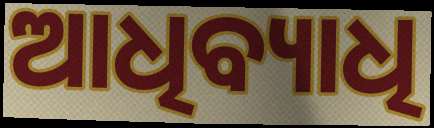
ଆଧିବ୍ୟାଧି